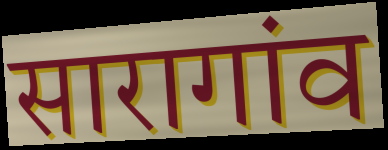
सारागांव